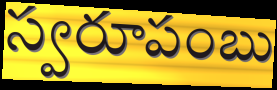
స్వరూపంబు